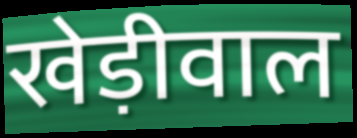
खेड़ीवाल